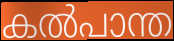
കൽപാന്ത